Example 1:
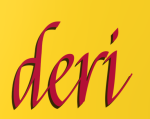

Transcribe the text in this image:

deri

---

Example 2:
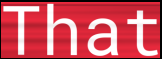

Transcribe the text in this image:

That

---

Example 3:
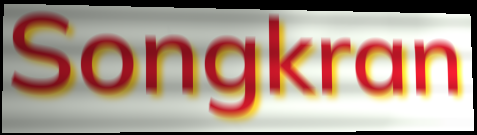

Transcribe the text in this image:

Songkran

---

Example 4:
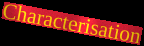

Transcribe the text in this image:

Characterisation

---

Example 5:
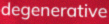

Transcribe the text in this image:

degenerative